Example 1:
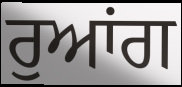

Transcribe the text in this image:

ਰੁਆਂਗ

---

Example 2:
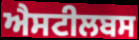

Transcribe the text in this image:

ਐਸਟੀਲਬਸ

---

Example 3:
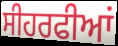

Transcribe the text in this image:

ਸੀਹਰਫੀਆਂ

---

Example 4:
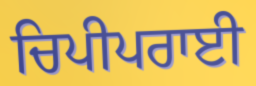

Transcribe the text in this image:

ਚਿਪੀਪਰਾਈ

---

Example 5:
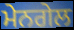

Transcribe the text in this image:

ਮੇਨਗੇਲ